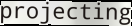
projecting